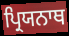
ਪ੍ਰਿਯਨਾਥ